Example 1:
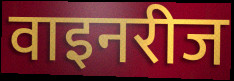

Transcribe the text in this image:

वाइनरीज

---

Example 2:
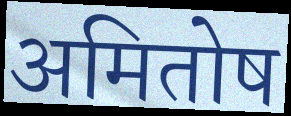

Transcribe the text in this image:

अमितोष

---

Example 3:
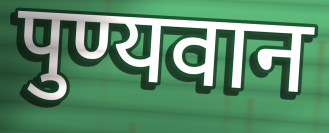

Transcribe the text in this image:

पुण्यवान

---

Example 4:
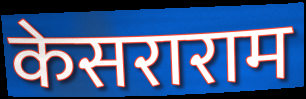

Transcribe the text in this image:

केसराराम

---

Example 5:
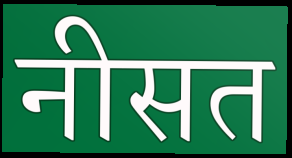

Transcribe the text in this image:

नीसत